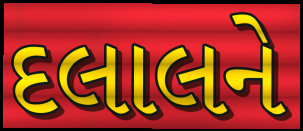
દલાલને